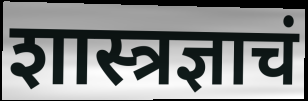
शास्त्रज्ञाचं